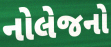
નોલેજનો